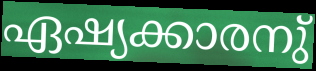
ഏഷ്യക്കാരനു്